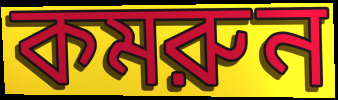
কমরুন